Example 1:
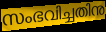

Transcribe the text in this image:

സംഭവിച്ചതിനു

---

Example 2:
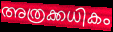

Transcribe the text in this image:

അത്രക്കധികം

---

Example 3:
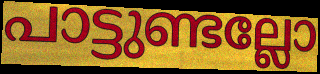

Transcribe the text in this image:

പാട്ടുണ്ടല്ലോ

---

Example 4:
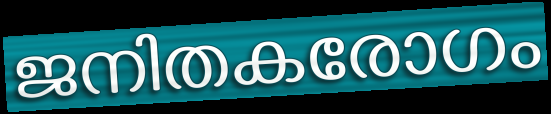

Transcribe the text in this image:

ജനിതകരോഗം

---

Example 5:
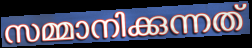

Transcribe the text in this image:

സമ്മാനിക്കുന്നത്